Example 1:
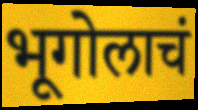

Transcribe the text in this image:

भूगोलाचं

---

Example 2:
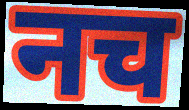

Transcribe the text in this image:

नच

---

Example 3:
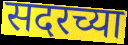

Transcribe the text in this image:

सदरच्या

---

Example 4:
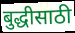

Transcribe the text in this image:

बुद्धीसाठी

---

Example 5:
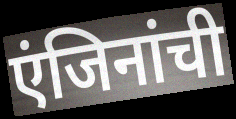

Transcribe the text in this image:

एंजिनांची